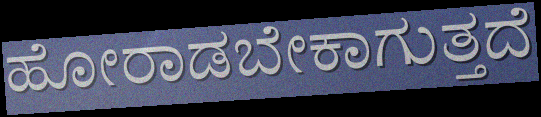
ಹೋರಾಡಬೇಕಾಗುತ್ತದೆ